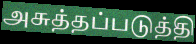
அசுத்தப்படுத்தி